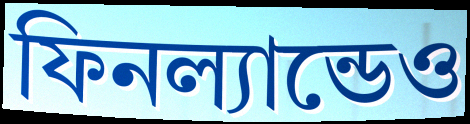
ফিনল্যান্ডেও